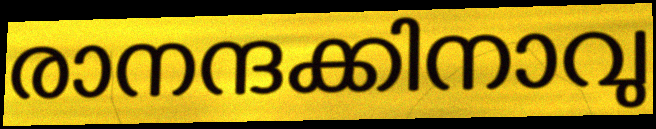
രാനന്ദക്കിനാവു